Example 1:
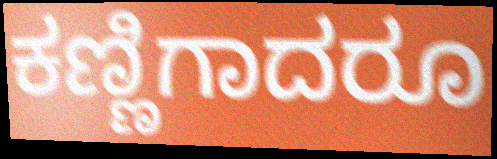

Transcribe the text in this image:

ಕಣ್ಣಿಗಾದರೂ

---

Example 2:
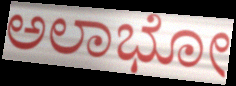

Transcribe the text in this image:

ಅಲಾಭೋ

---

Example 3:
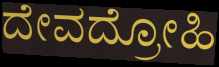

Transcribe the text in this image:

ದೇವದ್ರೋಹಿ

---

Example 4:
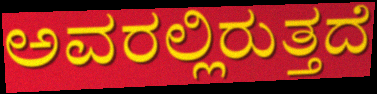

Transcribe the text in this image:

ಅವರಲ್ಲಿರುತ್ತದೆ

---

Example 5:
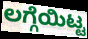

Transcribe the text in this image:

ಲಗ್ಗೆಯಿಟ್ಟ